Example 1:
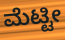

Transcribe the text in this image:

ಮೆಟ್ಟೀ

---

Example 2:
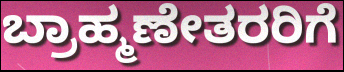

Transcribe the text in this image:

ಬ್ರಾಹ್ಮಣೇತರರಿಗೆ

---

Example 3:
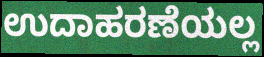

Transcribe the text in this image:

ಉದಾಹರಣೆಯಲ್ಲ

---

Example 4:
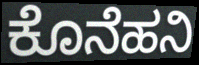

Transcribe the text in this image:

ಕೊನೆಹನಿ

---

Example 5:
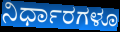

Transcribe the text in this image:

ನಿರ್ಧಾರಗಳೂ